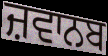
ਜ਼ਵਾਨਬ